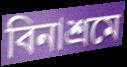
বিনাশ্রমে